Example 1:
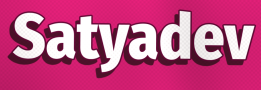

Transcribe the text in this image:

Satyadev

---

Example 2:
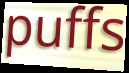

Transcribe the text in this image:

puffs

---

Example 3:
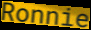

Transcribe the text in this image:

Ronnie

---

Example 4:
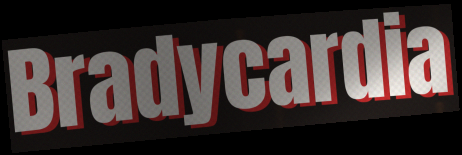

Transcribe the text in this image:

Bradycardia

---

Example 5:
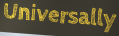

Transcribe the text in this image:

Universally